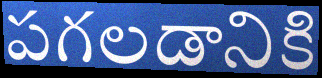
పగలడానికి